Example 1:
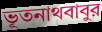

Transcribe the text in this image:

ভূতনাথবাবুর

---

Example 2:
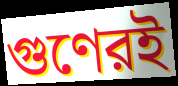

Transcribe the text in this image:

গুণেরই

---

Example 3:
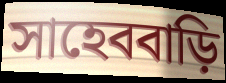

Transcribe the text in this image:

সাহেববাড়ি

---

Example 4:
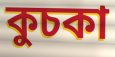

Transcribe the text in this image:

কুচকা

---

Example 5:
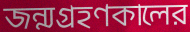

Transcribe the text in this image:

জন্মগ্রহণকালের